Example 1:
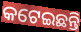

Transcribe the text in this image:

କଟେଇଛନ୍ତି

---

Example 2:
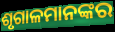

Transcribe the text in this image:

ଶୃଗାଳମାନଙ୍କର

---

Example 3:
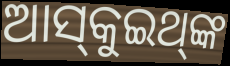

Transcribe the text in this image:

ଆସ୍‌କୁଇଥ୍‌ଙ୍କ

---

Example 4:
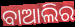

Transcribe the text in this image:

ବାଆଲିର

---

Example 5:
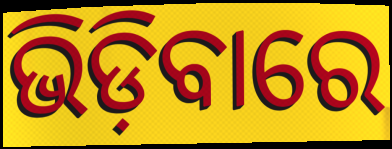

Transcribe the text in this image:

ଭିଡ଼ିବାରେ